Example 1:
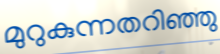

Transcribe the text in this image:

മുറുകുന്നതറിഞ്ഞു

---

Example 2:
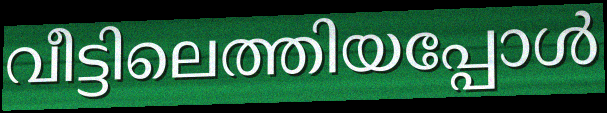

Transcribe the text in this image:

വീട്ടിലെത്തിയപ്പോൾ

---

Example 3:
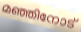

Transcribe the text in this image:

മഞ്ഞിനോട്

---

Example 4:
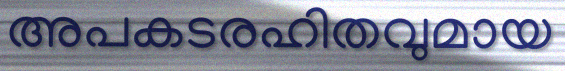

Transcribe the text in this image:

അപകടരഹിതവുമായ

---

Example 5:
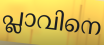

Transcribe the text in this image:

പ്ലാവിനെ